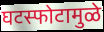
घटस्फोटामुळे